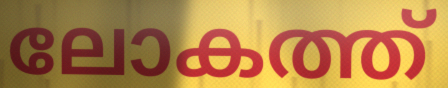
ലോകത്ത്